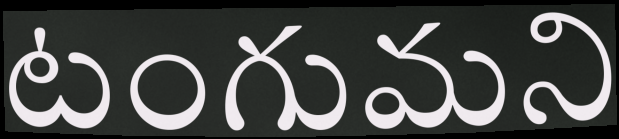
టంగుమని